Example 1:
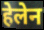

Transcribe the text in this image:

हेलेन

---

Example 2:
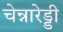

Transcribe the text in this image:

चेन्नारेड्डी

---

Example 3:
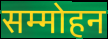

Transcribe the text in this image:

सम्मोहन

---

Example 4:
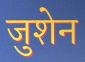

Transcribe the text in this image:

जुशेन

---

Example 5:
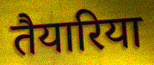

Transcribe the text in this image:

तैयारिया